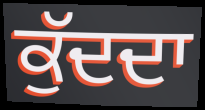
ਕੁੱਦਦਾ